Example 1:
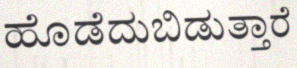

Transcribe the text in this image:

ಹೊಡೆದುಬಿಡುತ್ತಾರೆ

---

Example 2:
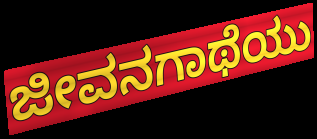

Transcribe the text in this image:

ಜೀವನಗಾಥೆಯು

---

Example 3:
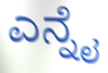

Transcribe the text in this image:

ಎನ್ನೈ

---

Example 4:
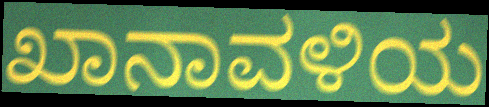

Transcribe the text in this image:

ಖಾನಾವಳಿಯ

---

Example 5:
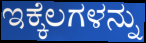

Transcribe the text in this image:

ಇಕ್ಕೆಲಗಳನ್ನು